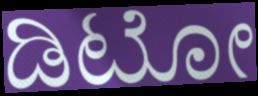
ಡಿಟೋ